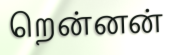
றென்னன்